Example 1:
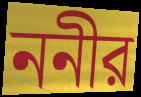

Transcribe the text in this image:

ননীর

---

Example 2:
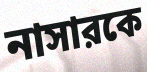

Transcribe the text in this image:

নাসারকে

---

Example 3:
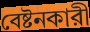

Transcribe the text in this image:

বেষ্টনকারী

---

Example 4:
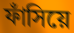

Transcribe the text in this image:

ফাঁসিয়ে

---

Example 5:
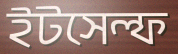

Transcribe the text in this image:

ইটসেল্ফ